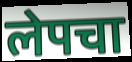
लेपचा